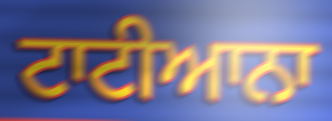
ਟਾਟੀਆਨਾ